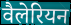
वैलेरियन